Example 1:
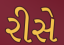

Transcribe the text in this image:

રીસે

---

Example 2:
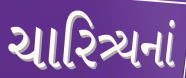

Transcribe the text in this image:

ચારિત્ર્યનાં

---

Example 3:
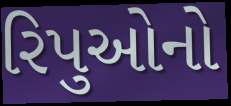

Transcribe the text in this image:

રિપુઓનો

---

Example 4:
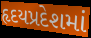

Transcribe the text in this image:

હૃદયપ્રદેશમાં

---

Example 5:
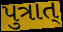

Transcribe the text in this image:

પુત્રાત્